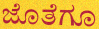
ಜೊತೆಗೂ